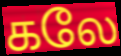
கலே